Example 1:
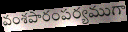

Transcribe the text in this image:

వంశపారంపర్యముగా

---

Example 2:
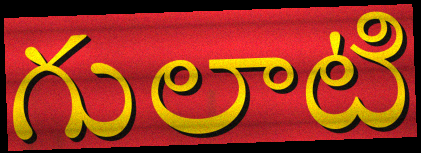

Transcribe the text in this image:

గులాటి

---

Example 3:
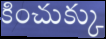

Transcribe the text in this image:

కించుక్కు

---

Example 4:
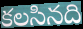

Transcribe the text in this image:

కలసినది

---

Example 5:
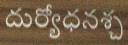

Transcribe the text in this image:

దుర్యోధనశ్చ